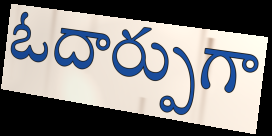
ఓదార్పుగా